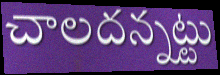
చాలదన్నట్టు